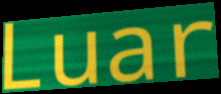
Luar